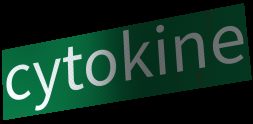
cytokine